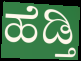
ಹೆಡ್ತಿ